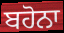
ਬਹੋਨਾ